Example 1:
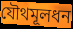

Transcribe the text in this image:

যৌথমূলধন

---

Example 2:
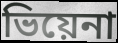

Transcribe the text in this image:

ভিয়েনা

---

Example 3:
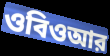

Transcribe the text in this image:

ওবিওআর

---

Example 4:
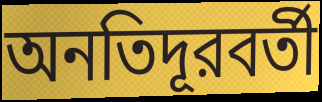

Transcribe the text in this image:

অনতিদূরবর্তী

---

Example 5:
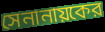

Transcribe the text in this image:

সেনানায়কের